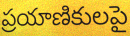
ప్రయాణికులపై